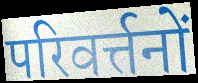
परिवर्त्तनों